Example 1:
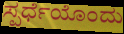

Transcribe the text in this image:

ಸ್ಪರ್ಧೆಯೊಂದು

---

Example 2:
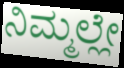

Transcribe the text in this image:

ನಿಮ್ಮಲ್ಲೇ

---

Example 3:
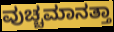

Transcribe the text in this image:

ವುಚ್ಚಮಾನತ್ತಾ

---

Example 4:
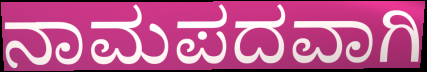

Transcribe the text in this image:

ನಾಮಪದವಾಗಿ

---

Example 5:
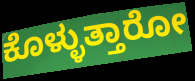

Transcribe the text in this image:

ಕೊಳ್ಳುತ್ತಾರೋ